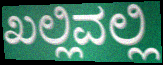
ಖಲ್ಲಿವಲ್ಲಿ